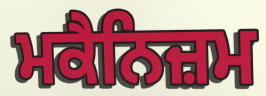
ਮਕੈਨਿਜ਼ਮ